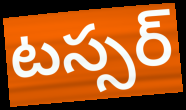
టస్సర్